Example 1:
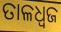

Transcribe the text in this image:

ତାଳଧ୍ୱଜ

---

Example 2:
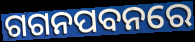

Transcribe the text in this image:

ଗଗନପବନରେ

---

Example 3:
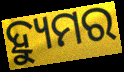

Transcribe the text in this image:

ହ୍ୟୁମର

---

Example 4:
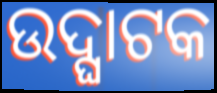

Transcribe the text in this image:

ଉଦ୍ଘାଟକ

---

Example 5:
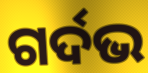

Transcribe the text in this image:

ଗର୍ଦଭ